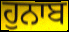
ਹੁਨਾਬ